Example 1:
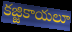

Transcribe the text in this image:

కజ్జికాయలూ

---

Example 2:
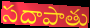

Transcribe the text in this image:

సదాపాతు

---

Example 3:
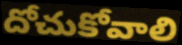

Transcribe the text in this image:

దోచుకోవాలి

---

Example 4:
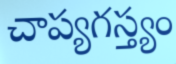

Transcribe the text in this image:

చాప్యగస్త్యం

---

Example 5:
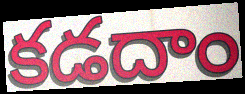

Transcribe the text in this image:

కడదాం